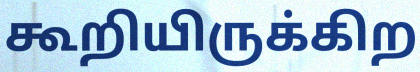
கூறியிருக்கிற